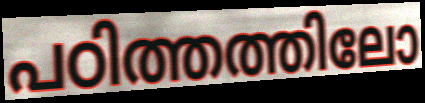
പഠിത്തത്തിലോ